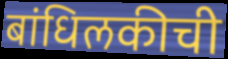
बांधिलकीची